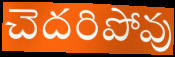
చెదరిపోవు